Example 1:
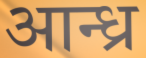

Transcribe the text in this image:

आन्ध्र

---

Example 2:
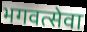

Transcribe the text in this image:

भगवत्सेवा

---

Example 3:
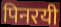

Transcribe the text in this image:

पिनरयी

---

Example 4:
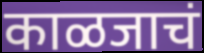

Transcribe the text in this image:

काळजाचं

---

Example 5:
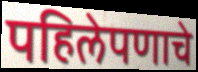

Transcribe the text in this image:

पहिलेपणाचे